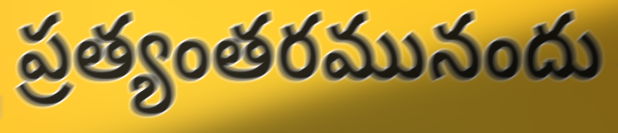
ప్రత్యంతరమునందు